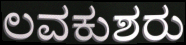
ಲವಕುಶರು